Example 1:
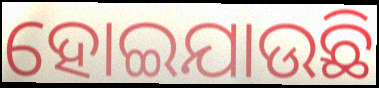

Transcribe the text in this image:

ହୋଇଯାଉଛି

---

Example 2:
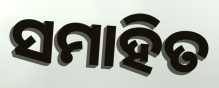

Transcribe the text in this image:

ସମାହିତ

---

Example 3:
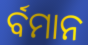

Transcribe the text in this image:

ର୍ବମାନ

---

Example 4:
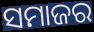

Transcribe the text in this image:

ସମାଜର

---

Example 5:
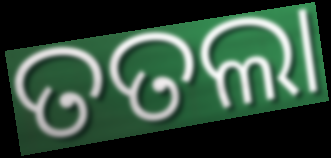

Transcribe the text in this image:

ତତଲା